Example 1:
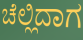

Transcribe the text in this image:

ಚೆಲ್ಲಿದಾಗ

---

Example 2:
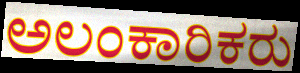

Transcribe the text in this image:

ಅಲಂಕಾರಿಕರು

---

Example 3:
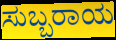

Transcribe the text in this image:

ಸುಬ್ಬರಾಯ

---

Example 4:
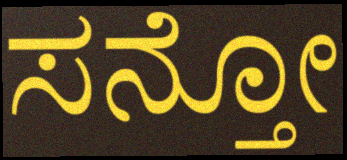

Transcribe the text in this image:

ಸನ್ತೋ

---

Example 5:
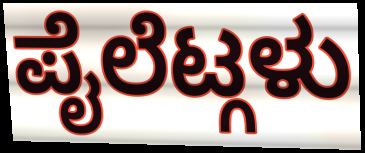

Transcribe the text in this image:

ಪೈಲೆಟ್ಗಳು